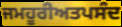
ਜਮਹੂਰੀਅਤਪਸੰਦ